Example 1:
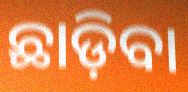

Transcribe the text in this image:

ଛାଡ଼ିବା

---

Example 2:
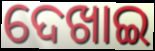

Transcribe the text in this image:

ଦେଖାଇ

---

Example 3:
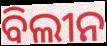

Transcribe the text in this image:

ବିଲୀନ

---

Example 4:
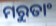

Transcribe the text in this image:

ମରୁତାଂ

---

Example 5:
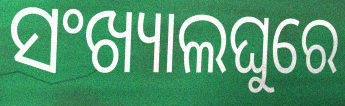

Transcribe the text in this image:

ସଂଖ୍ୟାଲଘୁରେ